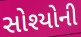
સોશ્યોની